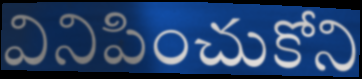
వినిపించుకోని